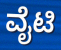
ವೈಟಿ